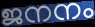
ജനനം